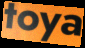
toya